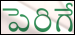
పెరిగే